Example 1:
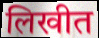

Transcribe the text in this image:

लिखीत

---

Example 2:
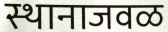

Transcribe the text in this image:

स्थानाजवळ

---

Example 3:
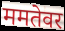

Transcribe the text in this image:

ममतेवर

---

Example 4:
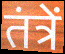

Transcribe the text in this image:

तंत्रें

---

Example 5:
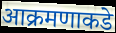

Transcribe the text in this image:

आक्रमणाकडे